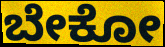
ಬೇಕೋ